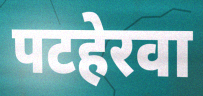
पटहेरवा